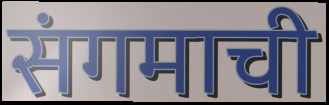
संगमाची